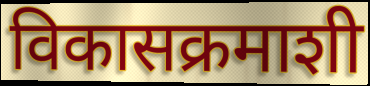
विकासक्रमाशी